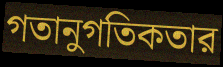
গতানুগতিকতার